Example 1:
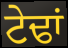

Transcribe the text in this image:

ਟੇਢਾਂ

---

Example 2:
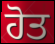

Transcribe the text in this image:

ਹੋਤ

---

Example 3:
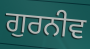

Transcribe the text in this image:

ਗੁਰਨੀਵ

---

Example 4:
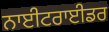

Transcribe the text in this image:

ਨਾਈਟਰਾਈਡਰ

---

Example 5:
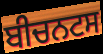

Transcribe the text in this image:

ਬੀਚਨਟਸ